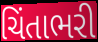
ચિંતાભરી